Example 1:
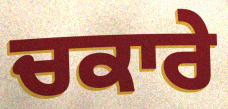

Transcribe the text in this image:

ਚਕਾਰੇ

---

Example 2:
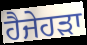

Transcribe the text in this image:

ਹੈਜੇਹੜਾ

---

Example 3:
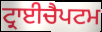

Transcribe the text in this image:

ਟ੍ਰਾਈਚੈਪਟਮ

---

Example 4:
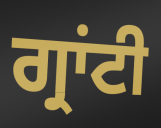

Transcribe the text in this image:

ਗ੍ਰਾਂਟੀ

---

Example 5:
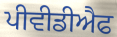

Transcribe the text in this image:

ਪੀਵੀਡੀਐਫ